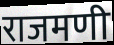
राजमणी